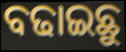
ବଢାଇଛୁ